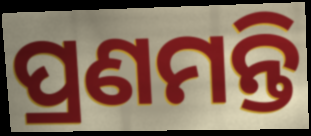
ପ୍ରଣମନ୍ତି